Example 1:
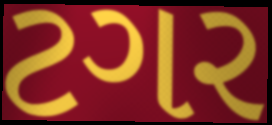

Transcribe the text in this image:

ટગર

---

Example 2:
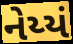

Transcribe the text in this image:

નેય્યં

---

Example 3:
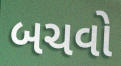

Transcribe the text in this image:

બચવો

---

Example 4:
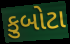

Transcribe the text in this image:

કુબોટા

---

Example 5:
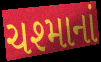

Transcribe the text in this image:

ચશ્માનાં